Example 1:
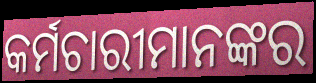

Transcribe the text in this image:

କର୍ମଚାରୀମାନଙ୍କର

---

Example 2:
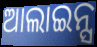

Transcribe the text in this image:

ଆଲାଇନ୍ସ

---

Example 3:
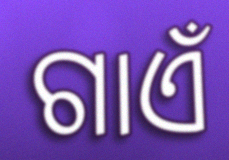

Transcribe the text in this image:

ଗାଏଁ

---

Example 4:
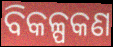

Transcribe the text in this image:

ବିକଳ୍ପକଣ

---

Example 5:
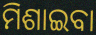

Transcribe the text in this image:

ମିଶାଇବା